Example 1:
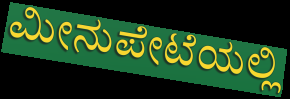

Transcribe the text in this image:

ಮೀನುಪೇಟೆಯಲ್ಲಿ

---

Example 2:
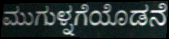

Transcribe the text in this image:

ಮುಗುಳ್ನಗೆಯೊಡನೆ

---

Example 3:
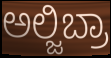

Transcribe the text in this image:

ಅಲ್ಜಿಬ್ರಾ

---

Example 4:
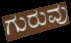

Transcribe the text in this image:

ಗುರುವು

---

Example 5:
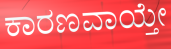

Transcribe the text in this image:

ಕಾರಣವಾಯ್ತೇ